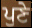
ਪੁਣੇ